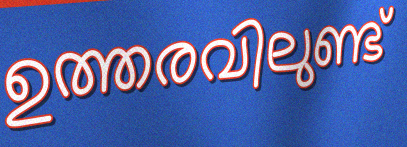
ഉത്തരവിലുണ്ട്